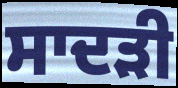
ਸਾਦੜੀ